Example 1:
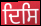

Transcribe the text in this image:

ਦਿਸਿ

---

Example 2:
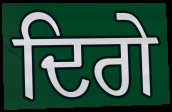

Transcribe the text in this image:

ਦਿਗੇ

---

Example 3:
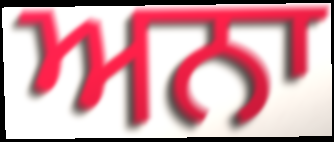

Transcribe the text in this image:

ਅਨਾ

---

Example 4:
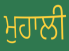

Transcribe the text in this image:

ਮੁਹਾਲੀ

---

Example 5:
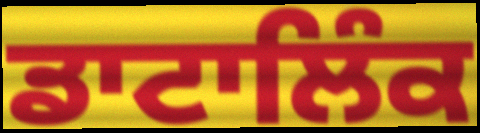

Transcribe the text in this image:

ਡਾਟਾਲਿੰਕ